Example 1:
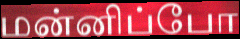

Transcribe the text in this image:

மன்னிப்போ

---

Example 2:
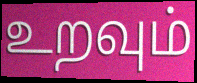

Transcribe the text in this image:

உறவும்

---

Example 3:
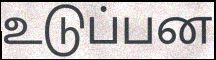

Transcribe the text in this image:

உடுப்பன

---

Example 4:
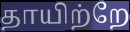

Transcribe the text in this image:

தாயிற்றே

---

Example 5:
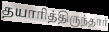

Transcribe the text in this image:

தயாரித்திருந்தார்